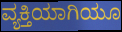
ವ್ಯಕ್ತಿಯಾಗಿಯೂ